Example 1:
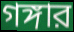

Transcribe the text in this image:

গঙ্গার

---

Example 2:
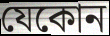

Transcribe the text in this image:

যেকোন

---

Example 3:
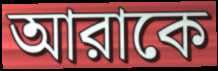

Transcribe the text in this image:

আরাকে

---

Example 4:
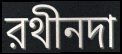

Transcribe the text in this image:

রথীনদা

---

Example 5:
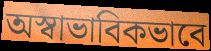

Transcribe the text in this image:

অস্বাভাবিকভাবে